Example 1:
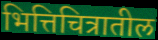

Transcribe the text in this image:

भित्तिचित्रातील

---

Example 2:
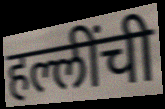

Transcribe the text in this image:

हल्लींची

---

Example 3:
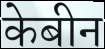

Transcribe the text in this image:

केबीन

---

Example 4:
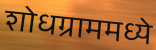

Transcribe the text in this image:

शोधग्राममध्ये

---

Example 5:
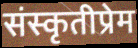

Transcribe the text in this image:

संस्कृतीप्रेम